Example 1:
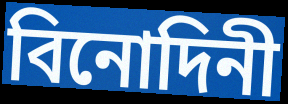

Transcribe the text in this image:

বিনোদিনী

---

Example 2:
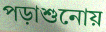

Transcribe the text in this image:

পড়াশুনোয়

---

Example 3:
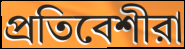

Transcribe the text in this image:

প্রতিবেশীরা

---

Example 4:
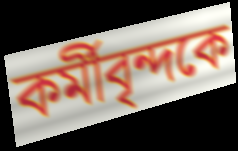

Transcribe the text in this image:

কর্মীবৃন্দকে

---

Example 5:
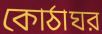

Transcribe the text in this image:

কোঠাঘর